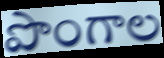
పొంగాల